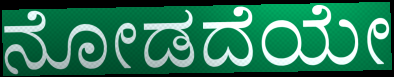
ನೋಡದೆಯೇ